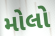
મોલો